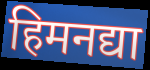
हिमनद्या